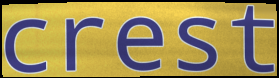
crest